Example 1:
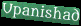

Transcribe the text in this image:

Upanishad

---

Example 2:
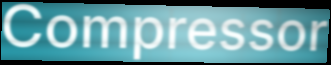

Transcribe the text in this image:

Compressor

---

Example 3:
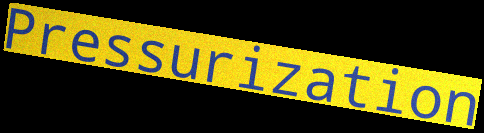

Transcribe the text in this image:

Pressurization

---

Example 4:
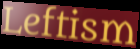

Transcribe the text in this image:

Leftism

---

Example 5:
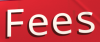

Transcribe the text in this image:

Fees